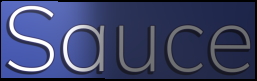
Sauce